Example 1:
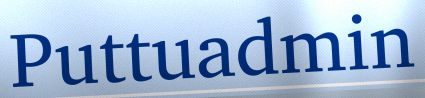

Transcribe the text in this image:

Puttuadmin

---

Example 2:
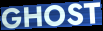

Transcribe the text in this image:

GHOST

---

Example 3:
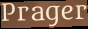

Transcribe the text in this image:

Prager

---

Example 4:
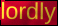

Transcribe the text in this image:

lordly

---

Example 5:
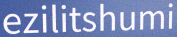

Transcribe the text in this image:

ezilitshumi